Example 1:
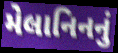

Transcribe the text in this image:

મેલાનિનનું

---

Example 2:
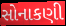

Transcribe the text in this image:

સોનાકણી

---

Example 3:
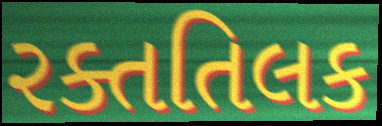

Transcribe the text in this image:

રક્તતિલક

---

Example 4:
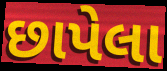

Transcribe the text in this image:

છાપેલા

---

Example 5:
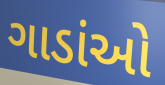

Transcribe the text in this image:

ગાડાંઓ